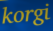
korgi